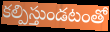
కల్పిస్తుండటంతో